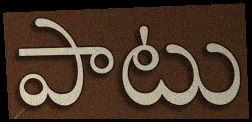
పాటు